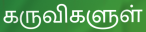
கருவிகளுள்